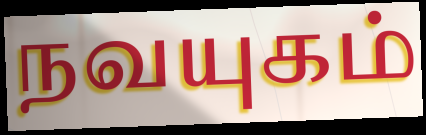
நவயுகம்